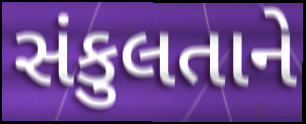
સંકુલતાને